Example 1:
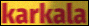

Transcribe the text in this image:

karkala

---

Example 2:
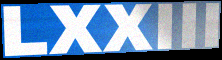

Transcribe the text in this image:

LXXIII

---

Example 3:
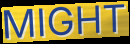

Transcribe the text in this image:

MIGHT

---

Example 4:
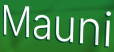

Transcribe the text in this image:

Mauni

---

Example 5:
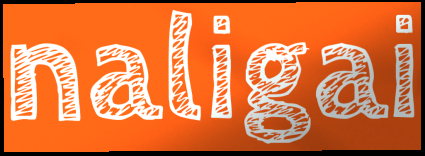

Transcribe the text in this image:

naligai